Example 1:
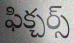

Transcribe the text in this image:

ఫిక్చర్స్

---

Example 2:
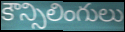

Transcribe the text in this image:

కౌన్సిలింగులు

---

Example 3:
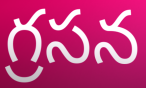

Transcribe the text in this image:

గ్రసన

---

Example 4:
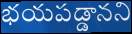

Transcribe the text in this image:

భయపడ్డానని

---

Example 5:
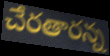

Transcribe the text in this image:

చేరతారన్న